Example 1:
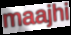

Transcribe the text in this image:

maajhi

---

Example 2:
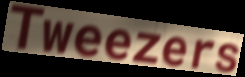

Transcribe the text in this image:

Tweezers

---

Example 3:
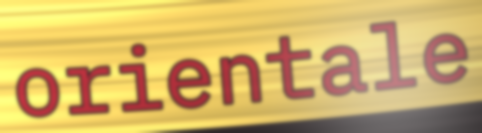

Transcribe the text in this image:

orientale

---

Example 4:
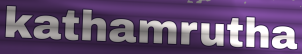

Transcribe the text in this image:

kathamrutha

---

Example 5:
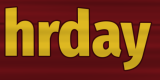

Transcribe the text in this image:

hrday